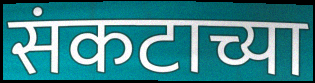
संकटाच्या